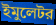
ইমুলেটর